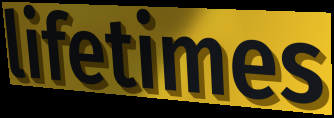
lifetimes